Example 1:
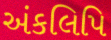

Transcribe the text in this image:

અંકલિપિ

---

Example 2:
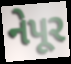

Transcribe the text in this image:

નેપૂર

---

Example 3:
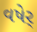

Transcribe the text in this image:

વષેર્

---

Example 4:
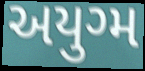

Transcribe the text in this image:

અયુગ્મ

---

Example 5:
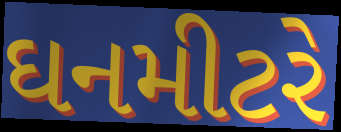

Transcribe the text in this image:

ઘનમીટરે